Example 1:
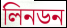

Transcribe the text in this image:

লিনডন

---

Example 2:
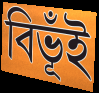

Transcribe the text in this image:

বিভূঁই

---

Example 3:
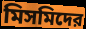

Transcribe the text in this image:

মিসমিদের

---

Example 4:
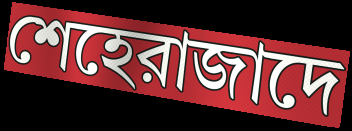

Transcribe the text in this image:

শেহেরাজাদে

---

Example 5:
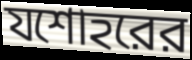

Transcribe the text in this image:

যশোহরের